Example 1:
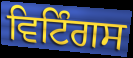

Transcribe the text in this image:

ਵਿਟਿੰਗਸ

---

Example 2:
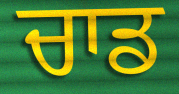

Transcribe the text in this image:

ਚਾਡ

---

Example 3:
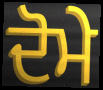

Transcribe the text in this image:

ਦੋਮੇ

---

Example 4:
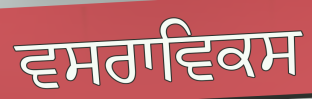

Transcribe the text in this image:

ਵਸਰਾਵਿਕਸ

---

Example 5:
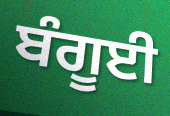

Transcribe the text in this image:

ਬੰਗੂਈ